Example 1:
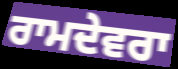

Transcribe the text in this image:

ਰਾਮਦੇਵਰਾ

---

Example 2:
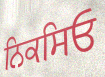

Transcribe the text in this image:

ਨਿਕਸਿਓ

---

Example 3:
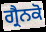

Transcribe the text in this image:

ਗ੍ਰੈਨਕੋ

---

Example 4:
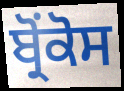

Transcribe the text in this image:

ਬ੍ਰੋਂਕੋਸ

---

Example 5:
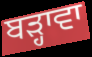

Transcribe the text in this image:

ਬੜ੍ਹਾਵਾ